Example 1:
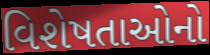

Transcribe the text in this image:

વિશેષતાઓનો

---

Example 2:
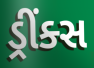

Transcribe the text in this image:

ડ્રીંક્સ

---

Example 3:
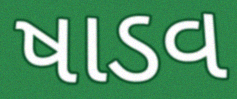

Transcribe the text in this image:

ષાડવ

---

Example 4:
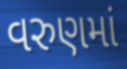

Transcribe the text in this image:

વરુણમાં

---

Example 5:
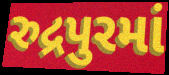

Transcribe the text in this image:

રુદ્રપુરમાં